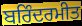
ਬਰਿੰਦਰਮੀਤ